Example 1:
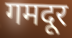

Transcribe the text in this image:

गमदूर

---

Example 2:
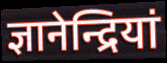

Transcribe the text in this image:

ज्ञानेन्द्रियां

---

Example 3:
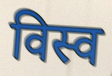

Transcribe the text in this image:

विस्व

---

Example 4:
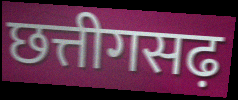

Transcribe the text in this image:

छत्तीगसढ़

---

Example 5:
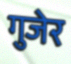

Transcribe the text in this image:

गुजेर